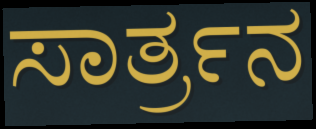
ಸಾರ್ತ್ರನ